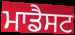
ਮਾਡੈਸਟ